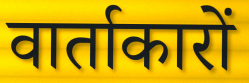
वार्ताकारों